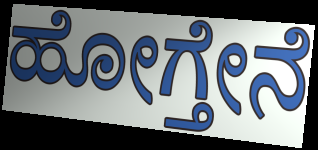
ಹೋಗ್ತೇನೆ